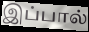
இப்பால்